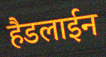
हैडलाईन